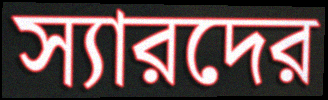
স্যারদের